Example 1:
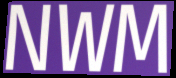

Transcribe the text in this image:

NWM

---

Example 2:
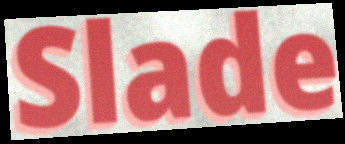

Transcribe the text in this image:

Slade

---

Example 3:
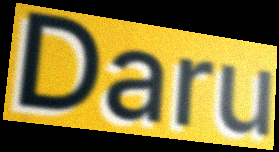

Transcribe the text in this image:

Daru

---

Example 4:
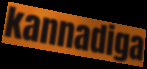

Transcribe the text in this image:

kannadiga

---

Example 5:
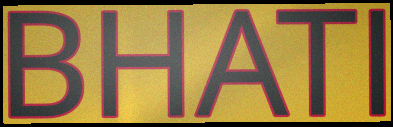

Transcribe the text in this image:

BHATI